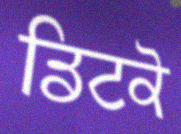
ਡਿਟਕੋ